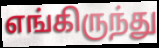
எங்கிருந்து